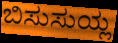
ಬಿಸುಸುಯ್ಲ